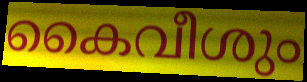
കൈവീശും